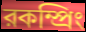
রকম্প্রিং